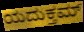
ಯದುಕ್ತಮ್